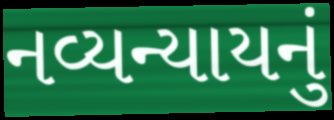
નવ્યન્યાયનું